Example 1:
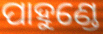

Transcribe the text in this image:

ପାହୁଣ୍ଡେ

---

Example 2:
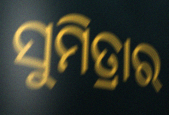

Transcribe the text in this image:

ସୁମିତ୍ରାର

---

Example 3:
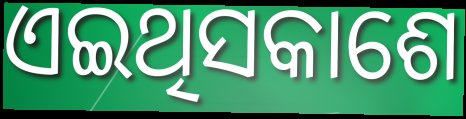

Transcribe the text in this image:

ଏଇଥିସକାଶେ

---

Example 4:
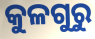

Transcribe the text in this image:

କୁଳଗୁରୁ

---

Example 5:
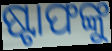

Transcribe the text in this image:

ଷ୍ଟାଫଙ୍କୁ